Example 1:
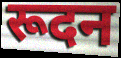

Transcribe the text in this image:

रूदन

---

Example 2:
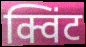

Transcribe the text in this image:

क्विंट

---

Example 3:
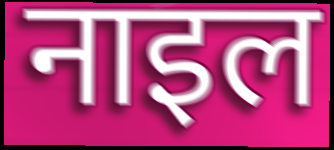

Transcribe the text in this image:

नाइल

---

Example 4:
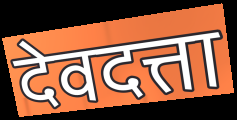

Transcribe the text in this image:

देवदत्ता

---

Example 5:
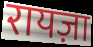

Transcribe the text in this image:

रायज़ा